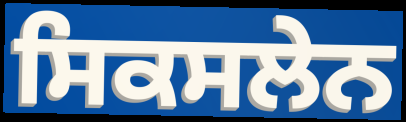
ਸਿਕਸਲੇਨ